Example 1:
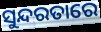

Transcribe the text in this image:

ସୁନ୍ଦରତାରେ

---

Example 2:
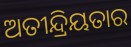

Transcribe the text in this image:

ଅତୀନ୍ଦ୍ରିୟତାର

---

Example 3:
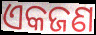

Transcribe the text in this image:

ଏକଜଣ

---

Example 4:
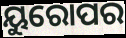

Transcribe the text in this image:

ୟୁରୋପର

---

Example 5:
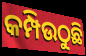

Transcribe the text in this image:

କମ୍ପିଉଠୁଛି